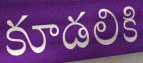
కూడలికి